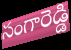
సంగారెడ్డి